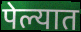
पेल्यात